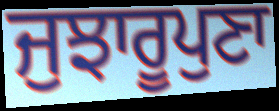
ਜੁਝਾਰੂਪੁਣਾ